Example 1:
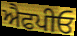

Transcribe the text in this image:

ਐਫਪੀਓ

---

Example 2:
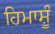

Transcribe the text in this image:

ਹਿਮਾਸ਼ੂੰ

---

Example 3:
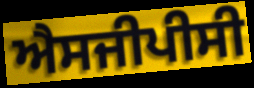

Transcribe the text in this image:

ਐਸਜੀਪੀਸੀ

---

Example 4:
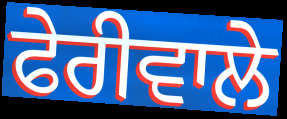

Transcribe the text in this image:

ਫੇਰੀਵਾਲੇ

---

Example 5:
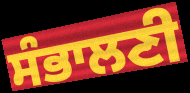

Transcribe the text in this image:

ਸੰਭਾਲਣੀ